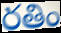
రతిం